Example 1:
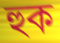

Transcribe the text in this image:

হুক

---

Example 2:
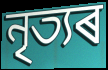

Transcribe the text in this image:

নৃত্যৰ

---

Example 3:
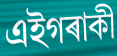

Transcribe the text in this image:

এইগৰাকী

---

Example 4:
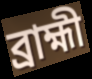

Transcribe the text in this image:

ব্ৰাহ্মী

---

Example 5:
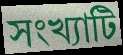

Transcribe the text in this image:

সংখ্যাটি